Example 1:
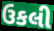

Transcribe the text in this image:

ઉકલી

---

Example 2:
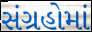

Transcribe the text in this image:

સંગ્રહોમાં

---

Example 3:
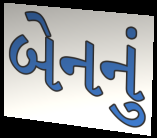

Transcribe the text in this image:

બેનનું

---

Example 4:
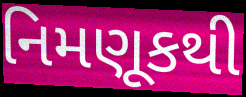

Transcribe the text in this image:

નિમણૂકથી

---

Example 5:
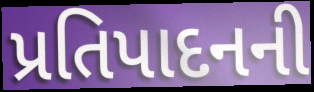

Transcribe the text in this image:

પ્રતિપાદનની